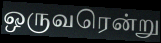
ஒருவரென்று